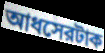
আধসেরটাক